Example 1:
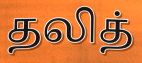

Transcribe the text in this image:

தலித்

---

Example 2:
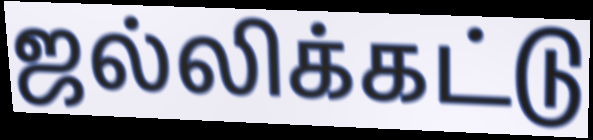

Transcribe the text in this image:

ஜல்லிக்கட்டு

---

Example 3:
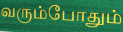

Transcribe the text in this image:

வரும்போதும்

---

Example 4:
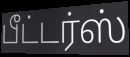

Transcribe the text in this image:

பீட்டர்ஸ்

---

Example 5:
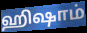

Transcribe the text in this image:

ஹிஷாம்